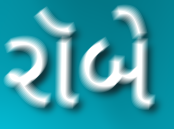
રૉબે